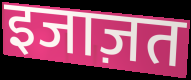
इजाज़त